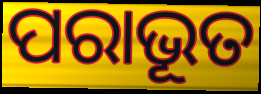
ପରାଭୂତ